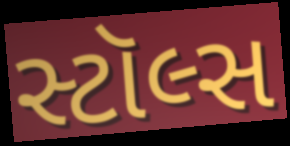
સ્ટૉલ્સ